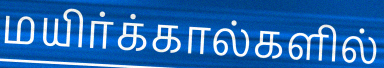
மயிர்க்கால்களில்